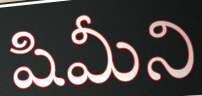
షిమీని